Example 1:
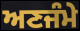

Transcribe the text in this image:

ਅਣਜੰਮੇ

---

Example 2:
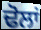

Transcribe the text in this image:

ਢੋਲਾਂ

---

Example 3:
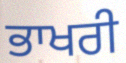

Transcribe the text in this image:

ਭਾਖਰੀ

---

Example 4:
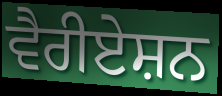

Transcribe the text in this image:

ਵੈਰੀਏਸ਼ਨ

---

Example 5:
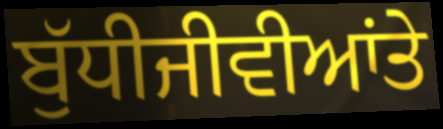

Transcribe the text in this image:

ਬੁੱਧੀਜੀਵੀਆਂਤੇ